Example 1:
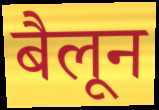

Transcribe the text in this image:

बैलून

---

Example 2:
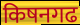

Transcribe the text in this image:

किषनगढ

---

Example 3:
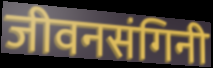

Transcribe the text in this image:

जीवनसंगिनी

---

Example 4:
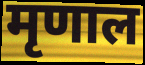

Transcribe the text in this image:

मृणाल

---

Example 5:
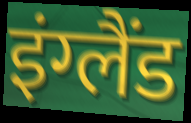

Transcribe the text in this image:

इंग्‍लैंड